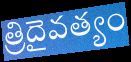
త్రిదైవత్యం